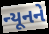
ન્યૂનને